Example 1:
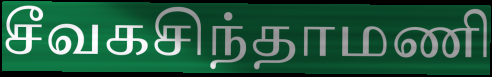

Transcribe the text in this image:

சீவகசிந்தாமணி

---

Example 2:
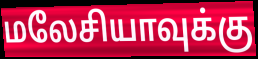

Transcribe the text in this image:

மலேசியாவுக்கு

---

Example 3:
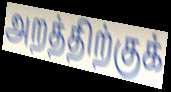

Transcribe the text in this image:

அறத்திற்குக்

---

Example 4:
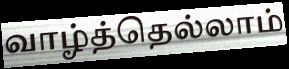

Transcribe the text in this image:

வாழ்த்தெல்லாம்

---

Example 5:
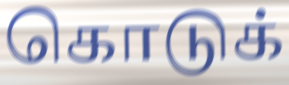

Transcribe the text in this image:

கொடுக்